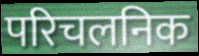
परिचलनिक